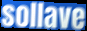
sollave